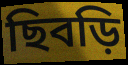
ছিবড়ি